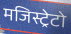
मजिस्ट्रेटो